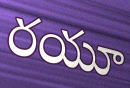
రయూ